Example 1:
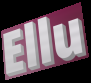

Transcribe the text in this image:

Ellu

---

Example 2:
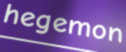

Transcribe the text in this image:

hegemon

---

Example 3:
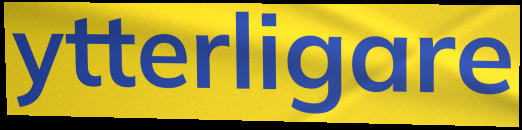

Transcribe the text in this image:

ytterligare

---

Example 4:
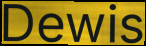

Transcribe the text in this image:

Dewis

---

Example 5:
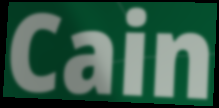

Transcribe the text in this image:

Cain